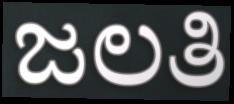
ಜಲತಿ